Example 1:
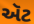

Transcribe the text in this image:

ઍટ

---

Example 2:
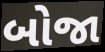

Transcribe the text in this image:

બોજા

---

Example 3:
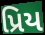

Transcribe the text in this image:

પ્રિય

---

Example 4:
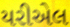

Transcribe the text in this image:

યરીએલ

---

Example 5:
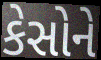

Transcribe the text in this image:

કેસોને